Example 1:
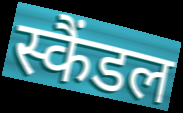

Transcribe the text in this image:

स्कैंडल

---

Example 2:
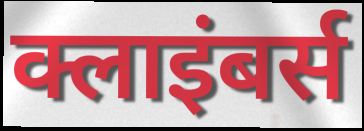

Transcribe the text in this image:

क्लाइंबर्स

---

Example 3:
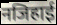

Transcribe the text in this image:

नजिहाई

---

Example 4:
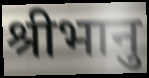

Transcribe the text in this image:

श्रीभानु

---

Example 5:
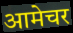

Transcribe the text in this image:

आमेचर